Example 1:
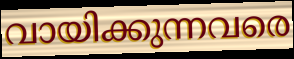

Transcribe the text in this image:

വായിക്കുന്നവരെ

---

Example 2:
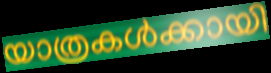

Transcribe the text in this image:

യാത്രകൾക്കായി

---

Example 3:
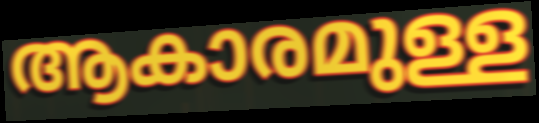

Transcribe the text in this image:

ആകാരമുള്ള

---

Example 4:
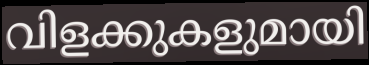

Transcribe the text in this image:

വിളക്കുകളുമായി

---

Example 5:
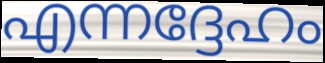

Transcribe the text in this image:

എന്നദ്ദേഹം